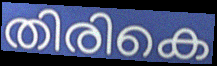
തിരികെ